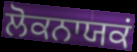
ਲੋਕਨਾਯਕਂ